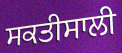
ਸਕਤੀਸਾਲੀ